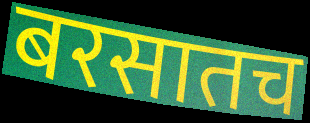
बरसातच